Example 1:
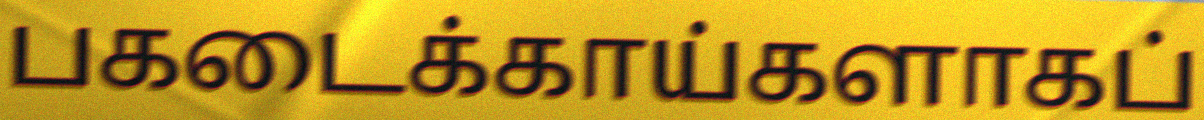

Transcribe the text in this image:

பகடைக்காய்களாகப்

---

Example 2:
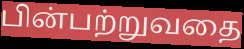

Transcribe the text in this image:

பின்பற்றுவதை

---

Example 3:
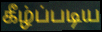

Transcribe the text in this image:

கீழ்ப்படிய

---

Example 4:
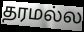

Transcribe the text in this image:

தரமல்ல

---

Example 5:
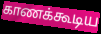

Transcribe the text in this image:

காணக்கூடிய